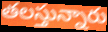
తలస్తున్నారు